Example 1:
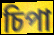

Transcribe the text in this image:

চিপা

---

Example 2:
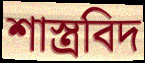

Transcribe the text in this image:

শাস্ত্ৰবিদ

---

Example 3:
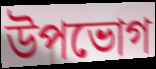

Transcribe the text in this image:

উপভোগ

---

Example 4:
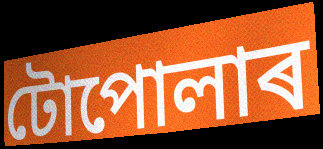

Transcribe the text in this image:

টোপোলাৰ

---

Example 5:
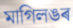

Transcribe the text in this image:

মাগিলঙৰ